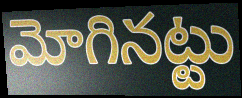
మోగినట్టు